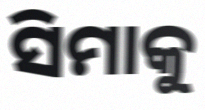
ସିମାକୁ